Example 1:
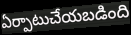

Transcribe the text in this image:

ఏర్పాటుచేయబడింది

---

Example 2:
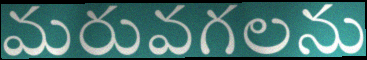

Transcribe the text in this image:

మరువగలను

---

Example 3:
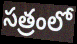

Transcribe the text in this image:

సత్రంలో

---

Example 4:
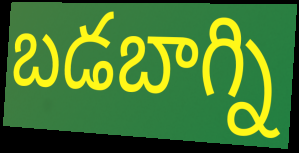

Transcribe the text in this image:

బడబాగ్ని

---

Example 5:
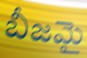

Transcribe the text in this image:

బీజమై